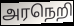
அரநெறி